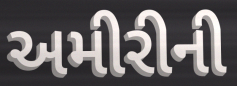
અમીરીની